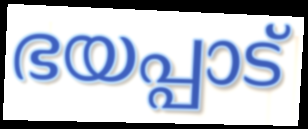
ഭയപ്പാട്